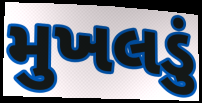
મુખલડું